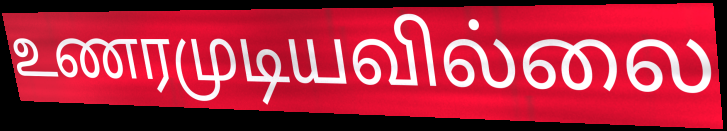
உணரமுடியவில்லை